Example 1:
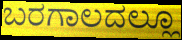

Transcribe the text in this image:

ಬರಗಾಲದಲ್ಲೂ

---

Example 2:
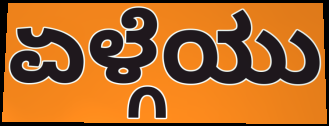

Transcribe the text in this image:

ಏಳ್ಗೆಯು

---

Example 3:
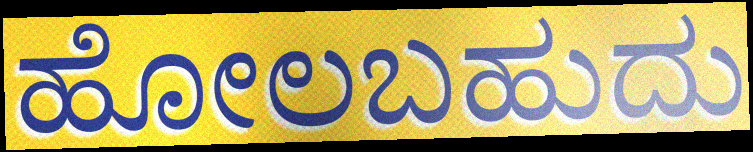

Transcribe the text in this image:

ಹೋಲಬಹುದು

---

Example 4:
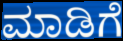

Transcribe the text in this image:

ಮಾಡಿಗೆ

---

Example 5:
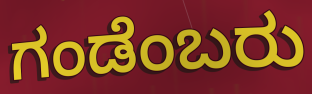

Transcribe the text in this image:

ಗಂಡೆಂಬರು